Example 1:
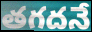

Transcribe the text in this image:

తగదనే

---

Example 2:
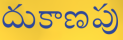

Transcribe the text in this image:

దుకాణపు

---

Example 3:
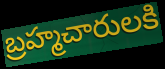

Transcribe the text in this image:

బ్రహ్మచారులకి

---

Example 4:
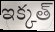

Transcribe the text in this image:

ఇక్కత్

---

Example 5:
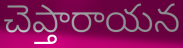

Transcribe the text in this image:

చెప్తారాయన